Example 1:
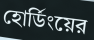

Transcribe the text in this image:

হোর্ডিংয়ের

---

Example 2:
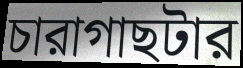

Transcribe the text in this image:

চারাগাছটার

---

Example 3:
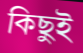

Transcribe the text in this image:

কিছুই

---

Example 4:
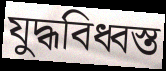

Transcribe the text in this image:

যুদ্ধবিধ্বস্ত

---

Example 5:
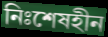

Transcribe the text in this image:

নিঃশেষহীন